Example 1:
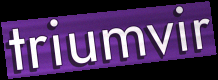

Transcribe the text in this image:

triumvir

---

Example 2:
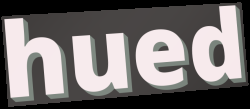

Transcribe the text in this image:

hued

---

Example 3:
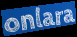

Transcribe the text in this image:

onlara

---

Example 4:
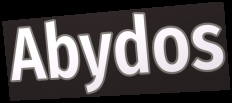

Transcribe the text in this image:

Abydos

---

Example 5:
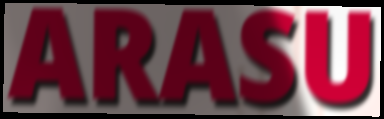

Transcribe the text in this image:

ARASU